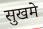
सुखमे